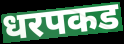
धरपकड